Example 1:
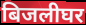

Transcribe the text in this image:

बिजलीघर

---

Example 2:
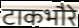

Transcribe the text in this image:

टाकभौरे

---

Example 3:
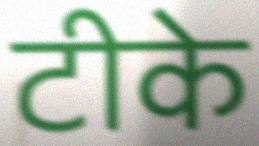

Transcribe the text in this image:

टीके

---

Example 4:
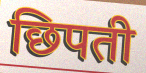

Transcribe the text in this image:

छिपती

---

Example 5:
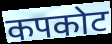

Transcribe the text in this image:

कपकोट